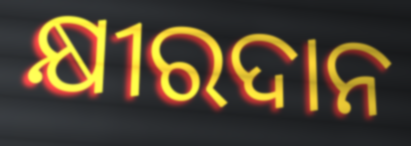
କ୍ଷୀରଦାନ